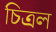
চিত্রল